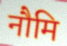
नौमि